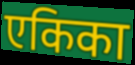
एकिका